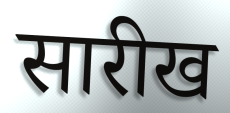
सारीख